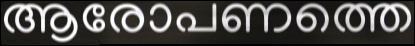
ആരോപണത്തെ